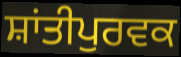
ਸ਼ਾਂਤੀਪੁਰਵਕ